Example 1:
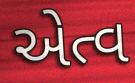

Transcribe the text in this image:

એત્વ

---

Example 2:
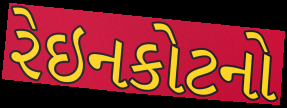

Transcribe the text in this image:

રેઇનકોટનો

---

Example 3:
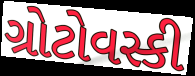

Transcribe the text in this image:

ગ્રોટોવસ્કી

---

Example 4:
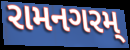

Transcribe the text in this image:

રામનગરમ્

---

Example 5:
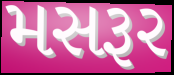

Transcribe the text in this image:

મસરૂર